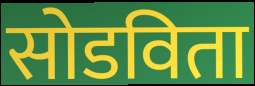
सोडविता